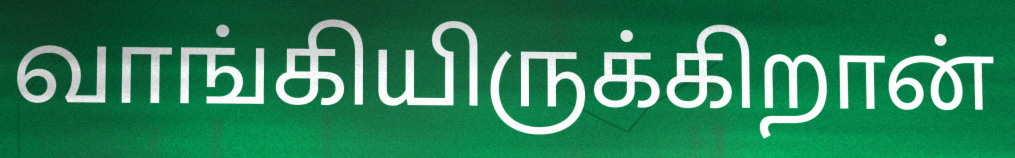
வாங்கியிருக்கிறான்